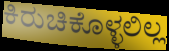
ಕಿರುಚಿಕೊಳ್ಳಲಿಲ್ಲ